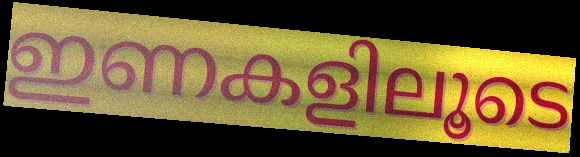
ഇണകളിലൂടെ